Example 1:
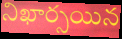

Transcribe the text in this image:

నిఖార్సయిన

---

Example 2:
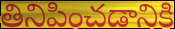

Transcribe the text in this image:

తినిపించడానికి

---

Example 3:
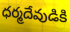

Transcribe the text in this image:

ధర్మదేవుడికి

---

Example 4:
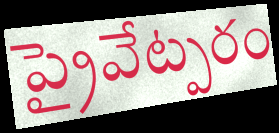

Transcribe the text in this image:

ప్రైవేట్పరం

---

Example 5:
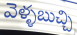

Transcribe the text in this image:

వెళ్ళబుచ్చి